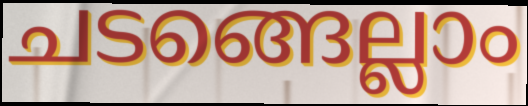
ചടങ്ങെല്ലാം